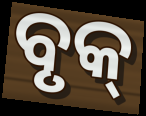
ବୃକ୍